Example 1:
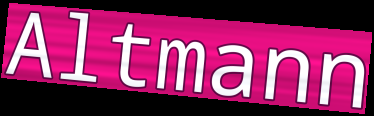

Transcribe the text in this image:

Altmann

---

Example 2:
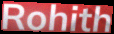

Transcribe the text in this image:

Rohith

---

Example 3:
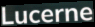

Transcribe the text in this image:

Lucerne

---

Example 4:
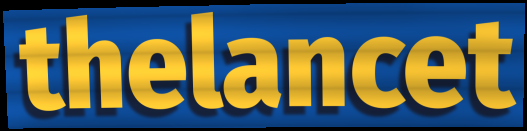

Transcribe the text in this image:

thelancet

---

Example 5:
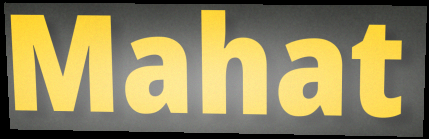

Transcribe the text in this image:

Mahat